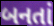
બનતાં